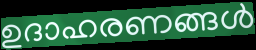
ഉദാഹരണങ്ങൾ